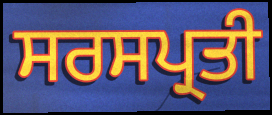
ਸਰਸਪ੍ਰਤੀ